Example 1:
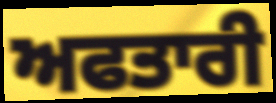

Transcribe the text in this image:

ਅਫਤਾਰੀ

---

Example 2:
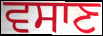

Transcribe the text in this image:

ਵਸਾਣ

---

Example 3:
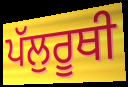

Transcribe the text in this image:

ਪੱਲੁਰੂਥੀ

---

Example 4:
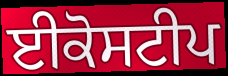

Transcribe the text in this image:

ਈਕੋਸਟੀਪ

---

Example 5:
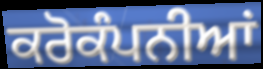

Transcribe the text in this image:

ਕਰੋਕੰਪਨੀਆਂ